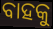
ବାହକୁ